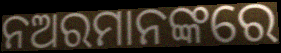
ନଅରମାନଙ୍କରେ